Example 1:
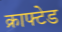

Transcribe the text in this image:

क्राफ्टेड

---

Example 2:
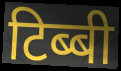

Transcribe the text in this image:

टिब्बी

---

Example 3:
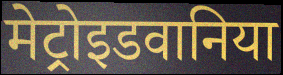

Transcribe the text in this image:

मेट्रोइडवानिया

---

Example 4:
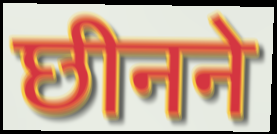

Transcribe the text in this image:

छीनने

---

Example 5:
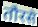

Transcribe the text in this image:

तौरसे